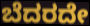
ಬೆದರದೇ